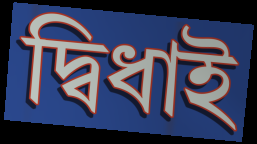
দ্বিধাই